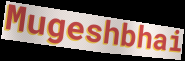
Mugeshbhai